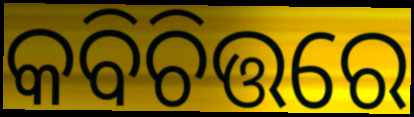
କବିଚିତ୍ତରେ